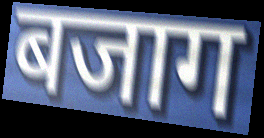
बजाग